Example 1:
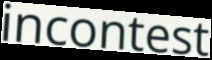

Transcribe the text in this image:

incontest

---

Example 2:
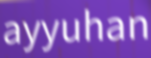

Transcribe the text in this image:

ayyuhan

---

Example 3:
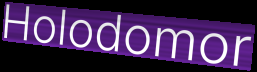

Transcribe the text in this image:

Holodomor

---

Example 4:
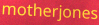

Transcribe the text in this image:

motherjones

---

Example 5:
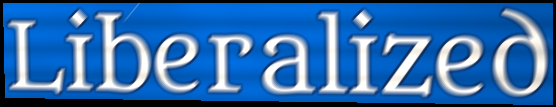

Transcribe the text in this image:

Liberalized